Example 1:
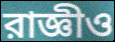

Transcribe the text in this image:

রাজ্ঞীও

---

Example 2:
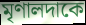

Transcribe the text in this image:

মৃণালদাকে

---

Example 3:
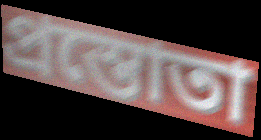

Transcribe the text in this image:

প্রস্তোতা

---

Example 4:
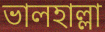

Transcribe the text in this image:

ভালহাল্লা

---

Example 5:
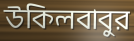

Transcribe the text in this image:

উকিলবাবুর